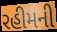
રહીમની